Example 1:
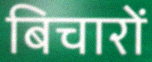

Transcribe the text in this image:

बिचारों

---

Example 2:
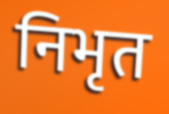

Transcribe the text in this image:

निभृत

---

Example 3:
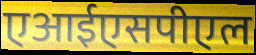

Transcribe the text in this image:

एआईएसपीएल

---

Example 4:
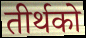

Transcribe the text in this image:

तीर्थको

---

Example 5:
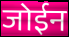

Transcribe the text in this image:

जोईन